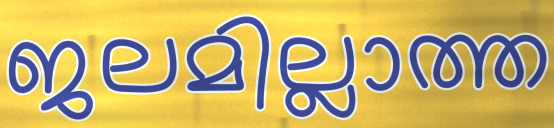
ജലമില്ലാത്ത